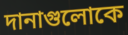
দানাগুলোকে